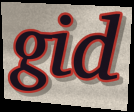
gid